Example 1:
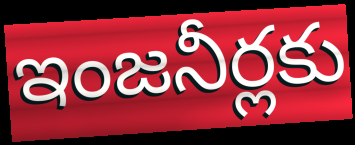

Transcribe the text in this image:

ఇంజనీర్లకు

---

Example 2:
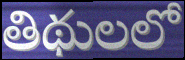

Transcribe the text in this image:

తిథులలో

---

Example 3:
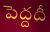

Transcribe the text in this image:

పెద్దదీ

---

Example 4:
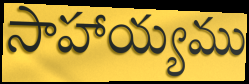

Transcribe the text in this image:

సాహాయ్యము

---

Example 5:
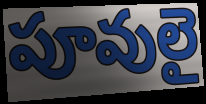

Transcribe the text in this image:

పూవులై